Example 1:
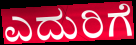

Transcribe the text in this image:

ಎದುರಿಗೆ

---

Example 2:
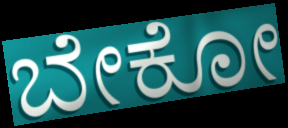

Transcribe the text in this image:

ಬೇಕೋ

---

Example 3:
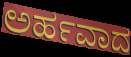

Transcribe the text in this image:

ಅರ್ಹವಾದ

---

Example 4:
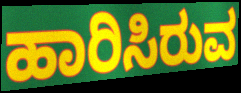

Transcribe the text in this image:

ಹಾರಿಸಿರುವ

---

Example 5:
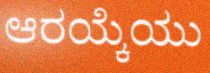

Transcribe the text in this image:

ಆರಯ್ಕೆಯು